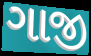
ગાજી